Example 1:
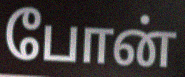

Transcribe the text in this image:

போன்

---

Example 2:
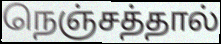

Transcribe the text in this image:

நெஞ்சத்தால்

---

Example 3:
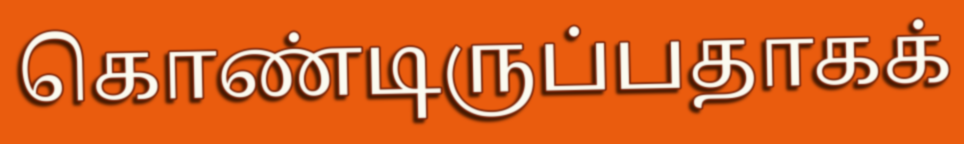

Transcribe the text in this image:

கொண்டிருப்பதாகக்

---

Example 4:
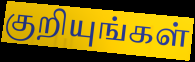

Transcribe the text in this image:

குறியுங்கள்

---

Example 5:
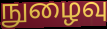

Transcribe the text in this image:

நுழைவு